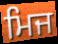
ਮਿਜ